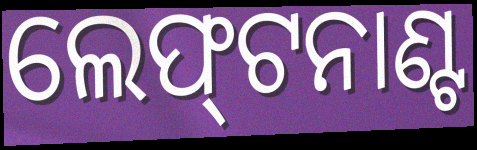
ଲେଫ୍‌ଟନାଣ୍ଟ